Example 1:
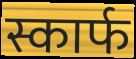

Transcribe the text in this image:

स्कार्फ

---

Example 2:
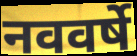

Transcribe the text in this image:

नववर्षे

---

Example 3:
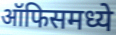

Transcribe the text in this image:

ऑफिसमध्ये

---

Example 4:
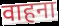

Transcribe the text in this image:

वाहना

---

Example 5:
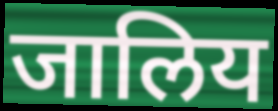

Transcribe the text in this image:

जालिय